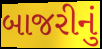
બાજરીનું